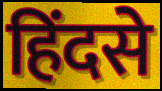
हिंदसे